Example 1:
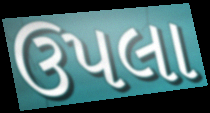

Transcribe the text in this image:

ઉપલા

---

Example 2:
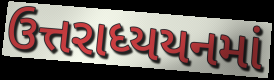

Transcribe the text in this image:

ઉત્તરાધ્યયનમાં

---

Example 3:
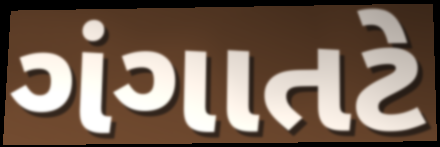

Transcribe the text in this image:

ગંગાતટે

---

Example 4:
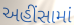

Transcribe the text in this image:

અહીંસામાં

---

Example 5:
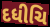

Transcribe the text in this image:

દધીચિ